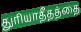
துரியாதீதத்தை